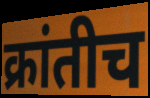
क्रांतीच